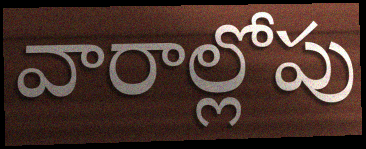
వారాల్లోపు